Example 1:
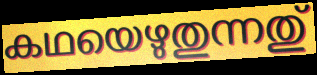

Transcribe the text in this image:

കഥയെഴുതുന്നതു്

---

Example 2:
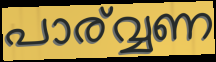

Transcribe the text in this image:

പാര്വ്വണ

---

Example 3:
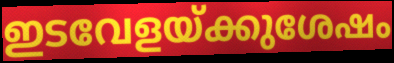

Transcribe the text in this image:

ഇടവേളയ്ക്കുശേഷം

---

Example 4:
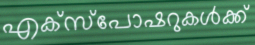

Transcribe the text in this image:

എക്സ്പോഷറുകൾക്ക്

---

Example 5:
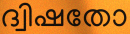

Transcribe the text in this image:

ദ്വിഷതോ